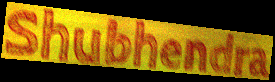
Shubhendra